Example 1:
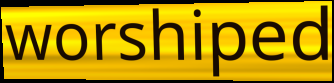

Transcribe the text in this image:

worshiped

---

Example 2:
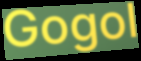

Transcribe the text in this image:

Gogol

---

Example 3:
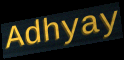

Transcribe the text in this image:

Adhyay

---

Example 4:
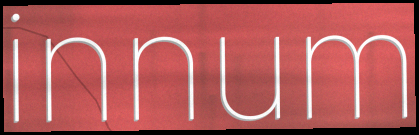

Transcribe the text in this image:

innum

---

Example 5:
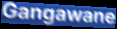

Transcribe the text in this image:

Gangawane